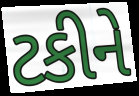
ટકીને